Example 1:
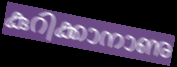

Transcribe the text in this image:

കുറിക്കാനാണു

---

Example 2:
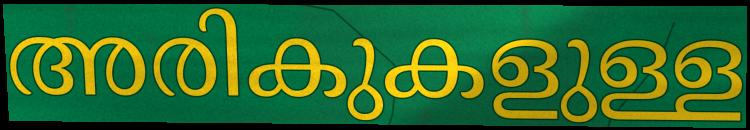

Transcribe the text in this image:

അരികുകളുള്ള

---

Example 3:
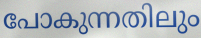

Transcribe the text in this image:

പോകുന്നതിലും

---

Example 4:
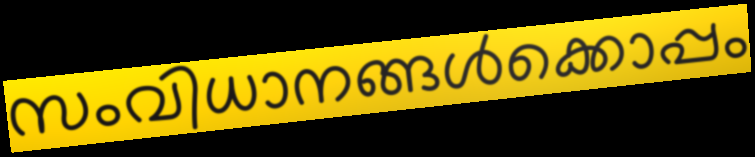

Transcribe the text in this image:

സംവിധാനങ്ങൾക്കൊപ്പം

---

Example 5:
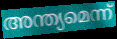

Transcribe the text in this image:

അന്ത്യമെന്ന്